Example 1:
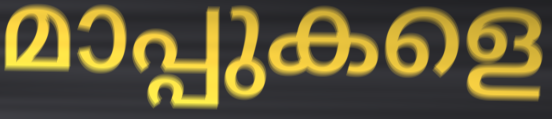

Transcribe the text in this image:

മാപ്പുകളെ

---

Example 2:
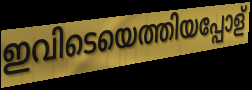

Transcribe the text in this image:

ഇവിടെയെത്തിയപ്പോള്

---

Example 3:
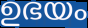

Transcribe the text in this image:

ഉഭയം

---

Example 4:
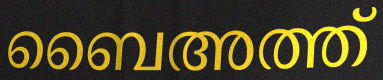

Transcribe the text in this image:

ബൈഅത്ത്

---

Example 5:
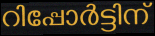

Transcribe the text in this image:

റിപ്പോർട്ടിന്